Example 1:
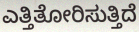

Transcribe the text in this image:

ಎತ್ತಿತೋರಿಸುತ್ತಿದೆ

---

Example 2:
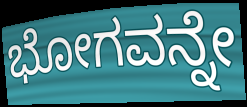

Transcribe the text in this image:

ಭೋಗವನ್ನೇ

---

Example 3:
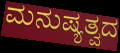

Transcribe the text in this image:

ಮನುಷ್ಯತ್ವದ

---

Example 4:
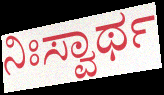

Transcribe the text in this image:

ನಿಃಸ್ವಾರ್ಥ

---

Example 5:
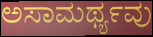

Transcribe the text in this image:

ಅಸಾಮರ್ಥ್ಯವು